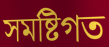
সমষ্টিগত